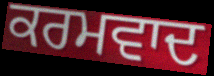
ਕਰਮਵਾਦ